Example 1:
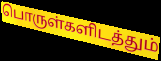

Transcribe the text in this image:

பொருள்களிடத்தும்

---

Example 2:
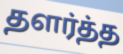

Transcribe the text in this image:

தளர்த்த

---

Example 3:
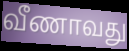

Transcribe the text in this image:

வீணாவது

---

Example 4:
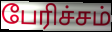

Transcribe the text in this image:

பேரிச்சம்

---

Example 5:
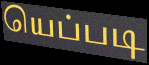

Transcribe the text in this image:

யெப்படி